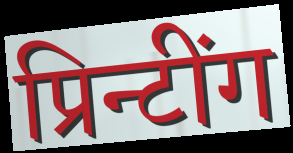
प्रिन्टींग